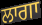
ਲਾਗਾ